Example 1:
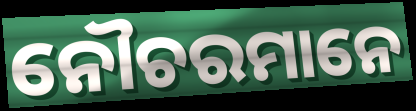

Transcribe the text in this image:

ନୌଚରମାନେ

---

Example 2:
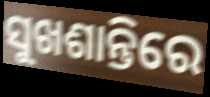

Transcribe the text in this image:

ସୁଖଶାନ୍ତିରେ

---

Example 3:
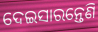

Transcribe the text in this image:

ଦେଇସାରନ୍ତେଣି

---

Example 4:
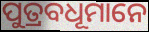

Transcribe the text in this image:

ପୁତ୍ରବଧୂମାନେ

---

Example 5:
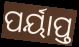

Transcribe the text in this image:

ପର୍ୟାପ୍ତ